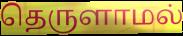
தெருளாமல்